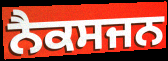
ਨੈਕਸਜਨ